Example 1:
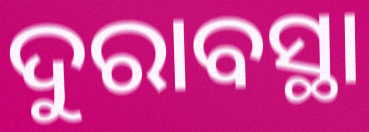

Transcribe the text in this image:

ଦୁରାବସ୍ଥା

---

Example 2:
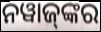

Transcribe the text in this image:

ନୱାଜ୍‍ଙ୍କର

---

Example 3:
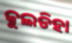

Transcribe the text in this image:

କୁଲଡିହା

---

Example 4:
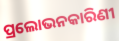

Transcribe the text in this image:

ପ୍ରଲୋଭନକାରିଣୀ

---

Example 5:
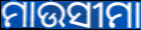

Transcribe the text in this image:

ମାଉସୀମା